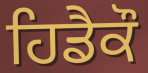
ਹਿਡੈਕੌ